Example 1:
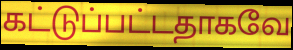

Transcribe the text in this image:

கட்டுப்பட்டதாகவே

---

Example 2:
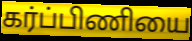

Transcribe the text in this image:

கர்ப்பிணியை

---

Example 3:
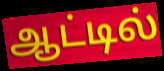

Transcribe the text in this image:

ஆட்டில்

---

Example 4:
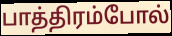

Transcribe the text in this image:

பாத்திரம்போல்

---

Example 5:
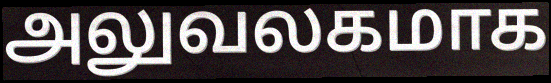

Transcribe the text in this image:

அலுவலகமாக